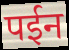
पईन